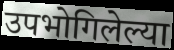
उपभोगिलेल्या